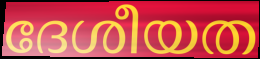
ദേശീയത